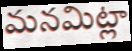
మనమిట్లా